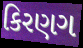
કિરણગ